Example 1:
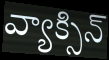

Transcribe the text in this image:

వ్యాక్సిన్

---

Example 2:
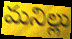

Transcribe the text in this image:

మనిల్లు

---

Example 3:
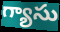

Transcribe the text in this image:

గ్యాసు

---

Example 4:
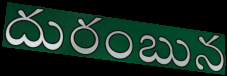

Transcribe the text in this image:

దురంబున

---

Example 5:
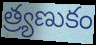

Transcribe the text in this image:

త్ర్యణుకం